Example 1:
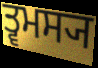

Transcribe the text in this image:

ਤ੍ਵਮਸ੍ਯ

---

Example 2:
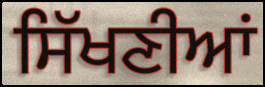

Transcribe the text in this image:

ਸਿੱਖਣੀਆਂ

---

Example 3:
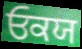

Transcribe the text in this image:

ਓਕਯ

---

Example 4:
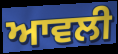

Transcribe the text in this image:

ਆਵਲੀ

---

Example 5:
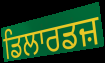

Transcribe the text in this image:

ਡਿਲਾਰਡਜ਼